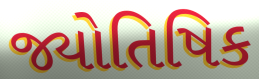
જ્યોતિષિક